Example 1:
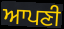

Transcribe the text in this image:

ਆਪਣੀ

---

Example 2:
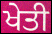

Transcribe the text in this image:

ਖੇਤੀ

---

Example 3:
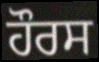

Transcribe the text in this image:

ਹੌਰਸ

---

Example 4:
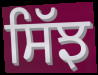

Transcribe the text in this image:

ਸਿੱਝ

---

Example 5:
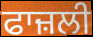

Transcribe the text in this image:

ਫਾਜ਼ਲੀ